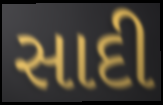
સાદી